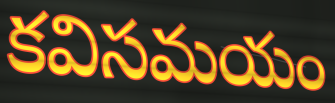
కవిసమయం